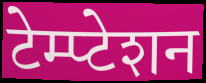
टेम्प्टेशन